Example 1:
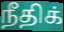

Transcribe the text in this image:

நீதிக்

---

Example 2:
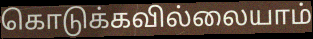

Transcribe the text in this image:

கொடுக்கவில்லையாம்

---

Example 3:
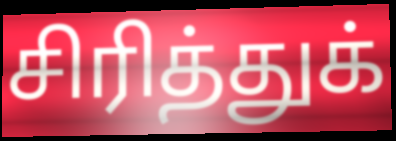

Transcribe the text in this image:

சிரித்துக்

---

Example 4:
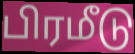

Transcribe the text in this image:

பிரமீடு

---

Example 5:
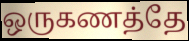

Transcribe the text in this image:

ஒருகணத்தே